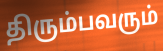
திரும்பவரும்